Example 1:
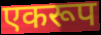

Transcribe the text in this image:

एकरूप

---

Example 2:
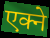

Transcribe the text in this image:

एक्ने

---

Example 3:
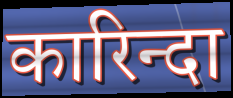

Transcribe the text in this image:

कारिन्दा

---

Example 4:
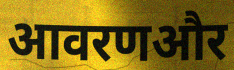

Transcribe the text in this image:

आवरणऔर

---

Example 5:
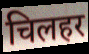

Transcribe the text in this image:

चिलहर